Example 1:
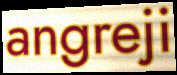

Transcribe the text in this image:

angreji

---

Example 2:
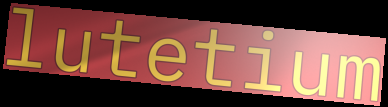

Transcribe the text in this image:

lutetium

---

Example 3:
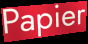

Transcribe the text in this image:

Papier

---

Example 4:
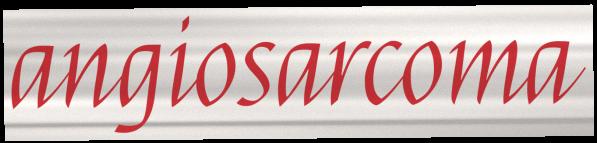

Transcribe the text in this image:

angiosarcoma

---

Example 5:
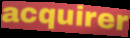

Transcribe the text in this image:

acquirer